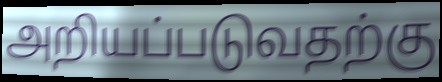
அறியப்படுவதற்கு